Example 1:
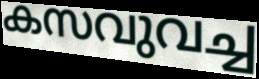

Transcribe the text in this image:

കസവുവച്ച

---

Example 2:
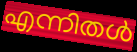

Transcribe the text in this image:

എന്നിതൾ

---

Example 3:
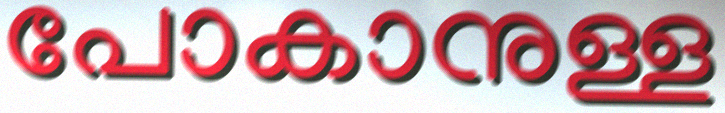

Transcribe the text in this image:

പോകാനുള്ള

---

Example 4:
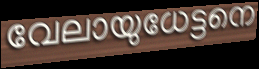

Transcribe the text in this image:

വേലായുധേട്ടനെ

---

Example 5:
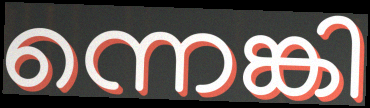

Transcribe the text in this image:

ന്നെങ്കി